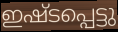
ഇഷ്ടപ്പെട്ടു